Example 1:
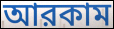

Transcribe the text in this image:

আরকাম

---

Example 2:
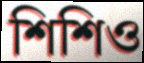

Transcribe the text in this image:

শিশিও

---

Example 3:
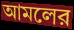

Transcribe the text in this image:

আমলের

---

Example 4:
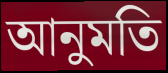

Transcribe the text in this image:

আনুমতি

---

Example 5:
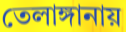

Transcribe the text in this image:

তেলাঙ্গানায়